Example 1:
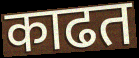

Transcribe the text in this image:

काढत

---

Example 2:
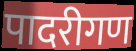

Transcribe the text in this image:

पादरीगण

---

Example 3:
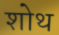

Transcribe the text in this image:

शोथ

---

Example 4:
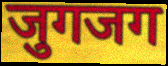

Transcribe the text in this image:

जुगजग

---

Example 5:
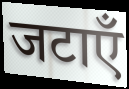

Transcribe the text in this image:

जटाएँ